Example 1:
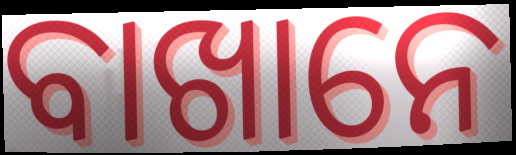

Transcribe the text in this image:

ବାଖାନେ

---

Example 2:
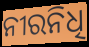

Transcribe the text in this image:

ନୀରନିଧି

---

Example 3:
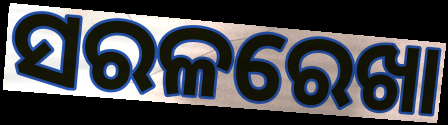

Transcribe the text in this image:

ସରଳରେଖା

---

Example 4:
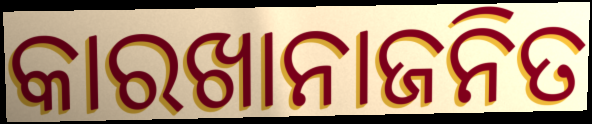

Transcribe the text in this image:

କାରଖାନାଜନିତ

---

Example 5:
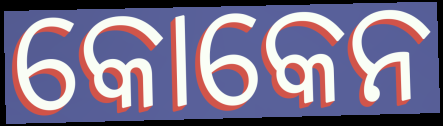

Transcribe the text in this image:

କୋକେନ